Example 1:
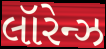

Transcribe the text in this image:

લૉરેન્ઝ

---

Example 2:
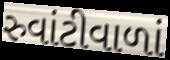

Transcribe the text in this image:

રુવાંટીવાળાં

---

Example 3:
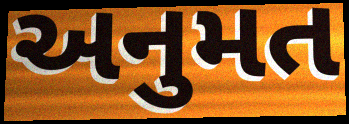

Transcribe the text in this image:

અનુમત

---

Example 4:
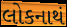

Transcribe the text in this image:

લોકનાથં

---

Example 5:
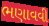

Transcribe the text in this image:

ભણાવવી